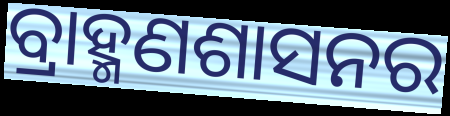
ବ୍ରାହ୍ମଣଶାସନର